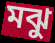
মঝু